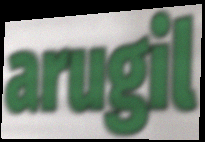
arugil